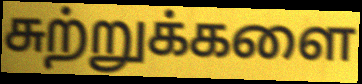
சுற்றுக்களை